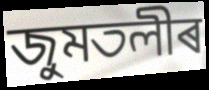
জুমতলীৰ